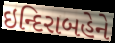
ઇન્દિરાબહેને